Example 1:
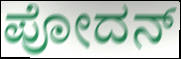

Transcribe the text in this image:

ಪೋದನ್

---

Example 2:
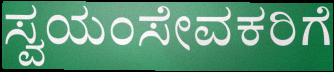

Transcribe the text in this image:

ಸ್ವಯಂಸೇವಕರಿಗೆ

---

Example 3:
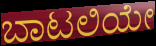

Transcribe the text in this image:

ಬಾಟಲಿಯೇ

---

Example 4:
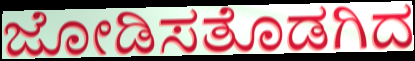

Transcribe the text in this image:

ಜೋಡಿಸತೊಡಗಿದ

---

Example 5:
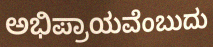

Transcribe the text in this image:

ಅಭಿಪ್ರಾಯವೆಂಬುದು